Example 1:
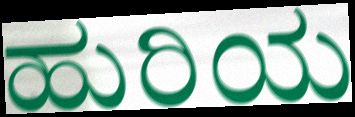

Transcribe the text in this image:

ಹುರಿಯ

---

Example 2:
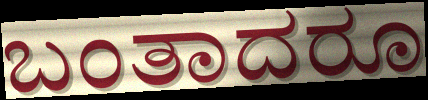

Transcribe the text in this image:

ಬಂತಾದರೂ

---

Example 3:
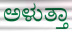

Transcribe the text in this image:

ಅಳುತ್ತಾ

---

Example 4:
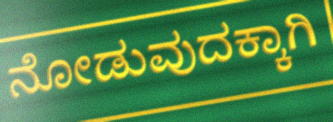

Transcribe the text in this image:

ನೋಡುವುದಕ್ಕಾಗಿ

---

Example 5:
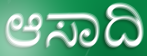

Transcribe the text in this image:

ಆಸಾದಿ